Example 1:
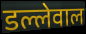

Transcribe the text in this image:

डल्लेवाल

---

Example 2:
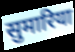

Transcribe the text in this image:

सुमारिया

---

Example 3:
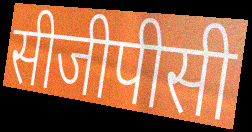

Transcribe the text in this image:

सीजीपीसी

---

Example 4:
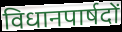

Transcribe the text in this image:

विधानपार्षदों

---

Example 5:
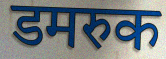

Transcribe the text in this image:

डमरुक